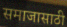
समाजासाठी